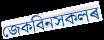
জেকবিনসকলৰ